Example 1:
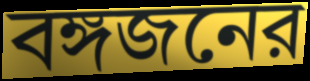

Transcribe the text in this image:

বঙ্গজনের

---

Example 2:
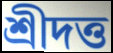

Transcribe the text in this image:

শ্রীদত্ত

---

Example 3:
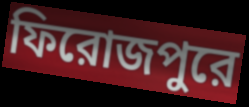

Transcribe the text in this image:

ফিরোজপুরে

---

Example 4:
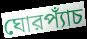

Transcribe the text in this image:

ঘোরপ্যাঁচ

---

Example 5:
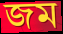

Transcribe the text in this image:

জম